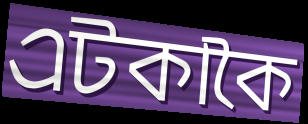
এটকাকৈ